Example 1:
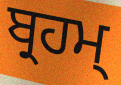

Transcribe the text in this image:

ਬ੍ਰਹਮ੍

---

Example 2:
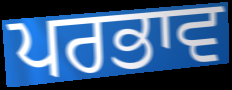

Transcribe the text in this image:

ਪਰਭਾਵ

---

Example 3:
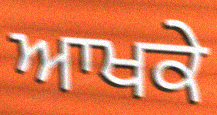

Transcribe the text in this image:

ਆਖਕੇ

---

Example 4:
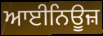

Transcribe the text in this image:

ਆਈਨਿਊਜ਼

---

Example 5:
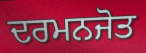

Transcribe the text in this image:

ਦਰਮਨਜੋਤ